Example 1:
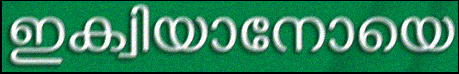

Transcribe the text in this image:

ഇക്വിയാനോയെ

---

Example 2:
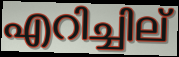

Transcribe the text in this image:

എറിച്ചില്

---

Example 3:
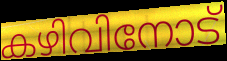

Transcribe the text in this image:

കഴിവിനോട്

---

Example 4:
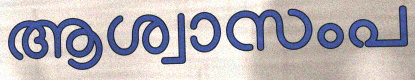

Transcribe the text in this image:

ആശ്വാസംപ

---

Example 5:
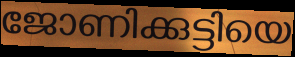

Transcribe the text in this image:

ജോണിക്കുട്ടിയെ